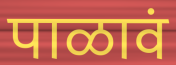
पाळावं